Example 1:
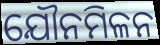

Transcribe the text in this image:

ଯୌନମିଳନ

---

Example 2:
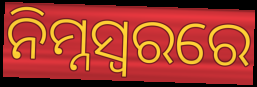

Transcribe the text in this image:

ନିମ୍ନସ୍ଵରରେ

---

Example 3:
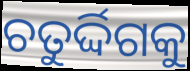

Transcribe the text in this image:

ଚତୁର୍ଦ୍ଦିଗକୁ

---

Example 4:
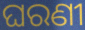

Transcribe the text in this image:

ଘରଣୀ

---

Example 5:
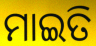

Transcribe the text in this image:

ମାଇତି